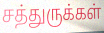
சத்துருக்கள்